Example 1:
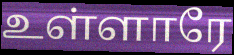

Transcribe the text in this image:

உள்ளாரே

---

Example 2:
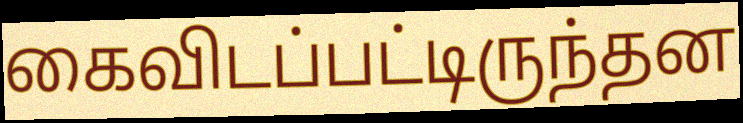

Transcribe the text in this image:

கைவிடப்பட்டிருந்தன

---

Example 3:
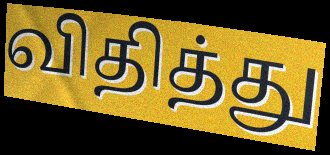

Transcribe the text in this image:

விதித்து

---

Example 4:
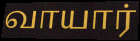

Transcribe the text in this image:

வாயார்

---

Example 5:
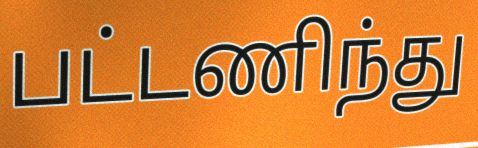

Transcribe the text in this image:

பட்டணிந்து